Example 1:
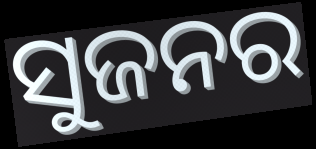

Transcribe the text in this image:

ସୁଜନର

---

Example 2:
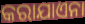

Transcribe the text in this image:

କରାଯାଏନା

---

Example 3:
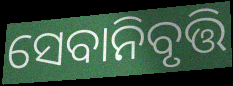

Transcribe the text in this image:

ସେବାନିବୃତ୍ତି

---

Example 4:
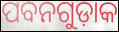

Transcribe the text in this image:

ପବନଗୁଡ଼ାକ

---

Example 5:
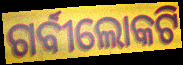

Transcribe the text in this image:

ଗର୍ବୀଲୋକଟି